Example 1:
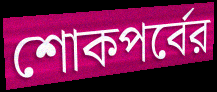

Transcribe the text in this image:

শোকপর্বের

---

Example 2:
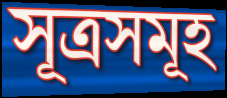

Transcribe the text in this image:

সূত্রসমূহ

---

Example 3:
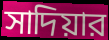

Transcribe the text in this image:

সাদিয়ার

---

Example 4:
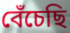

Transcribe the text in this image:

বেঁচেছি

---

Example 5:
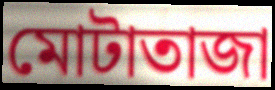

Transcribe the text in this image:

মোটাতাজা